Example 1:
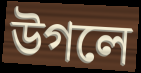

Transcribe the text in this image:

উগলে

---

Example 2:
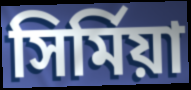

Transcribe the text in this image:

সির্মিয়া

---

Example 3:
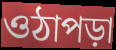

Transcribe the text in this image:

ওঠাপড়া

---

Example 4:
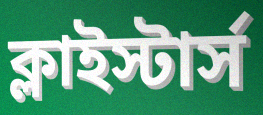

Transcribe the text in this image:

ক্লাইস্টার্স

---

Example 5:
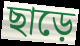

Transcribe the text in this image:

ছাড়ে